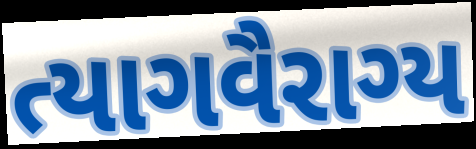
ત્યાગવૈરાગ્ય